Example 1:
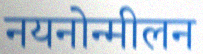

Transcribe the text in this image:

नयनोन्मीलन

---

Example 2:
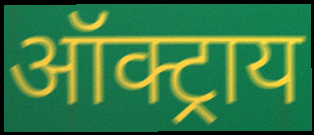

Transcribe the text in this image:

ऑक्ट्राय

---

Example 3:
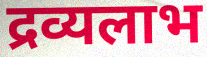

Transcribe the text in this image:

द्रव्यलाभ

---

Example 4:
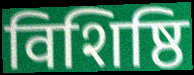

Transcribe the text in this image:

विशिष्ठि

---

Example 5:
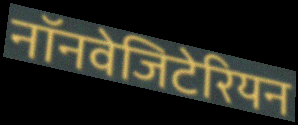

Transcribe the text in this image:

नॉनवेजिटेरियन